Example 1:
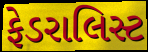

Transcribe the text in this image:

ફેડરાલિસ્ટ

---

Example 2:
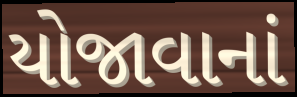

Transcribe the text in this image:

યોજાવાનાં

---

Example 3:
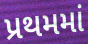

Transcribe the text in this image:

પ્રથમમાં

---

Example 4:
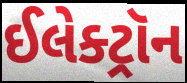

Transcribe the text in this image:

ઈલેક્ટ્રૉન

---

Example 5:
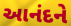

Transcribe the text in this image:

આનંદને